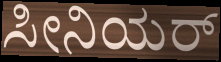
ಸೀನಿಯರ್